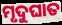
ମୃଦୁଘାତ